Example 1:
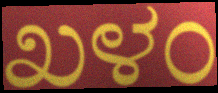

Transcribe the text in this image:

ಖಳಂ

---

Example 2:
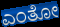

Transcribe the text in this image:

ಎಂತೋ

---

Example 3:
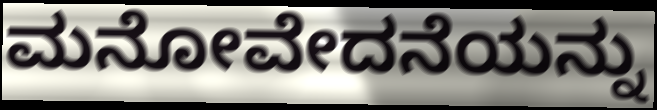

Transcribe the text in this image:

ಮನೋವೇದನೆಯನ್ನು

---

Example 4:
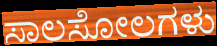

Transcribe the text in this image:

ಸಾಲಸೋಲಗಳು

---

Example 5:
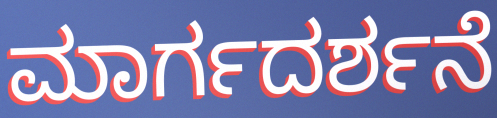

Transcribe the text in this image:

ಮಾರ್ಗದರ್ಶನೆ